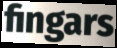
fingars